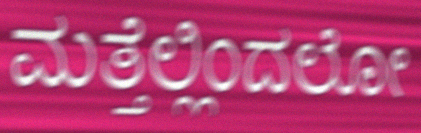
ಮತ್ತೆಲ್ಲಿಂದಲೋ